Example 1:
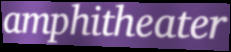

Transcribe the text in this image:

amphitheater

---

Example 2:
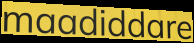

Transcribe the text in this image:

maadiddare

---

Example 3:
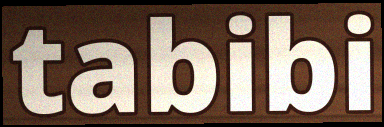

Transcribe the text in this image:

tabibi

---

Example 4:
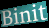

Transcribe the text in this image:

Binit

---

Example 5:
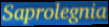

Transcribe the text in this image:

Saprolegnia